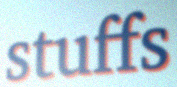
stuffs